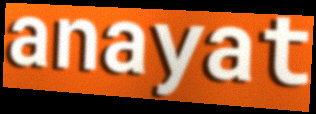
anayat